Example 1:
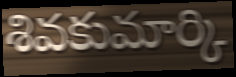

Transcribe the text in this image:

శివకుమార్కి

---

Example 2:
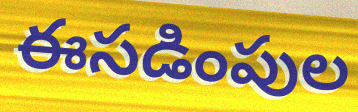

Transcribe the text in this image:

ఈసడింపుల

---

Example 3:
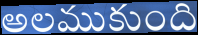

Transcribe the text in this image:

అలముకుంది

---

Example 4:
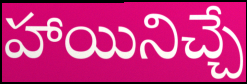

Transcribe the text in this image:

హాయినిచ్చే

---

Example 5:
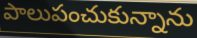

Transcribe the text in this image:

పాలుపంచుకున్నాను